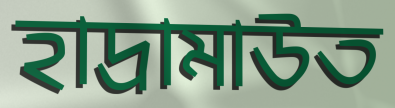
হাদ্রামাউত